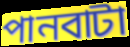
পানবাটা